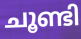
ചൂണ്ടി